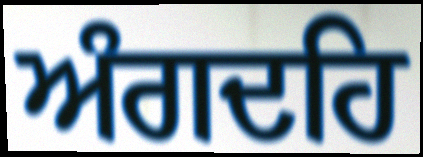
ਅੰਗਦਹਿ